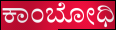
ಕಾಂಬೋಧಿ